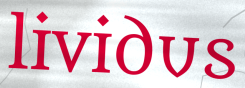
lividus